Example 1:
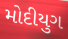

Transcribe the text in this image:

મોદીયુગ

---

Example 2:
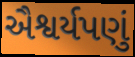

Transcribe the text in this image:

ઐશ્વર્યપણું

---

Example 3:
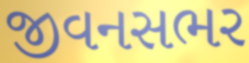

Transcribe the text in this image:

જીવનસભર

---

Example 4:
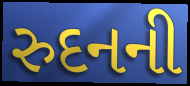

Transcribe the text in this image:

રુદનની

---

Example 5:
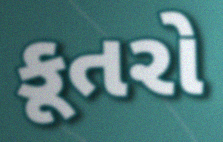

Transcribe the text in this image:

કૂતરો